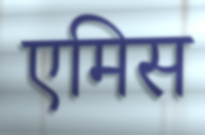
एमिस